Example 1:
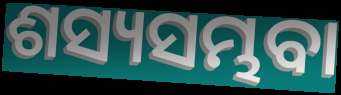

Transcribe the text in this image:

ଶସ୍ୟସମ୍ଭବା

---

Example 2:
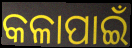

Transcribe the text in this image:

କଳାପାଇଁ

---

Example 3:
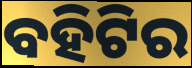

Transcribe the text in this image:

ବହିଟିର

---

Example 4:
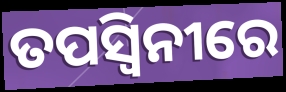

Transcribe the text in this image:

ତପସ୍ଵିନୀରେ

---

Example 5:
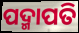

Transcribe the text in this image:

ପଦ୍ମାପତି